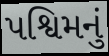
પશ્વિમનું